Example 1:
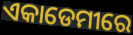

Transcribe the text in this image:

ଏକାଡେମୀରେ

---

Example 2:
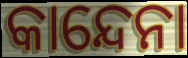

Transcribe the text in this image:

କାନ୍ଦେନା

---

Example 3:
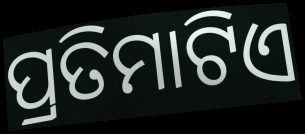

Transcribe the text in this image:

ପ୍ରତିମାଟିଏ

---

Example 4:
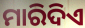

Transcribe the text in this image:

ମାରିଦିଏ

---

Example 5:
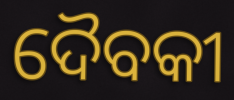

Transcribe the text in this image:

ଦୈବକୀ